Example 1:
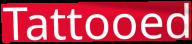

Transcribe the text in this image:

Tattooed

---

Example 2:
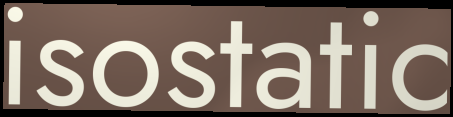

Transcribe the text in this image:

isostatic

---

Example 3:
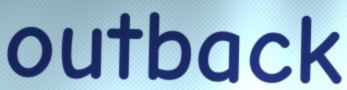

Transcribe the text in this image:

outback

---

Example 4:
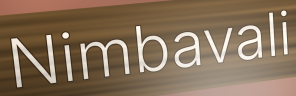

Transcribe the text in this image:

Nimbavali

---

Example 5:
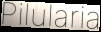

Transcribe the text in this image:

Pilularia